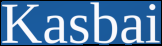
Kasbai